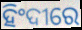
ହିଂଦୀରେ